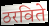
ठरविते